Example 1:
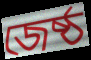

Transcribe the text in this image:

জেষ্ঠ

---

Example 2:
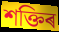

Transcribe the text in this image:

শক্তিৰ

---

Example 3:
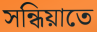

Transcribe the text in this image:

সন্ধিয়াতে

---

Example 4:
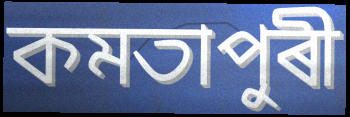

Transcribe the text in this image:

কমতাপুৰী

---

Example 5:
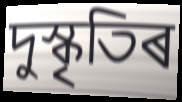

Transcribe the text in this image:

দুস্কৃতিৰ